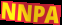
NNPA